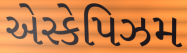
એસ્કેપિઝમ